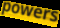
powers